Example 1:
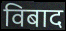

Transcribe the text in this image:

विबाद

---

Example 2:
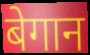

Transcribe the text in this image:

बेगान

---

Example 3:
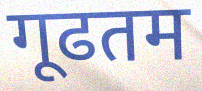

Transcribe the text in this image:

गूढतम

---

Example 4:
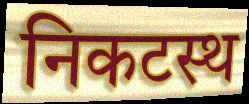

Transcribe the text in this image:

निकटस्‍थ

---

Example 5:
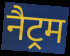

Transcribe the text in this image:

नैट्रम